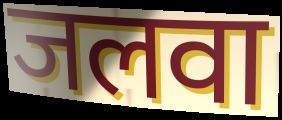
जलवा